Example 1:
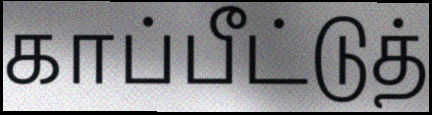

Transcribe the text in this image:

காப்பீட்டுத்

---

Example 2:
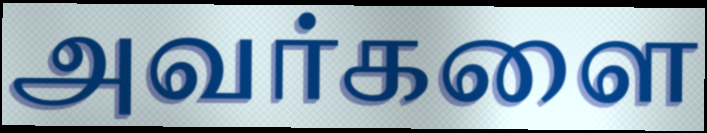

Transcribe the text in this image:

அவர்களை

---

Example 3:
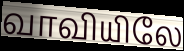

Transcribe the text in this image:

வாவியிலே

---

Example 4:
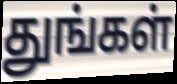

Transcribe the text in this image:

துங்கள்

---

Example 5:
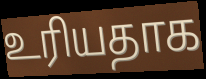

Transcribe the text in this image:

உரியதாக